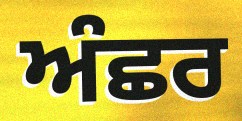
ਅੰਛਰ